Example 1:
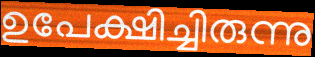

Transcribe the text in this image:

ഉപേക്ഷിച്ചിരുന്നു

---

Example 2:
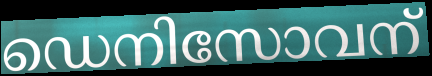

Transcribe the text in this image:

ഡെനിസോവന്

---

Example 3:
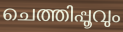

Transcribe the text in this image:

ചെത്തിപ്പൂവും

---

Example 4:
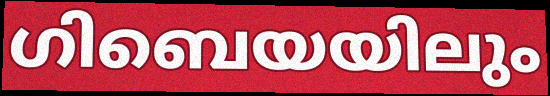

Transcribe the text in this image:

ഗിബെയയിലും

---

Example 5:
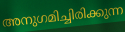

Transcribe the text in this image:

അനുഗമിച്ചിരിക്കുന്ന